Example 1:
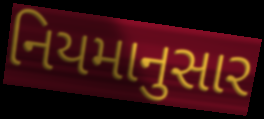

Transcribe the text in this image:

નિયમાનુસાર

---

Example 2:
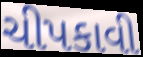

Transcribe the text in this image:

ચીપકાવી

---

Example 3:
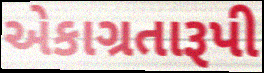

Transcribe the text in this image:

એકાગ્રતારૂપી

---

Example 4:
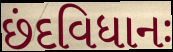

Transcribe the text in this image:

છંદવિધાનઃ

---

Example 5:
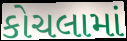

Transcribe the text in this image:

કોચલામાં